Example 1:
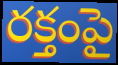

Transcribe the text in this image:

రక్తంపై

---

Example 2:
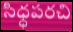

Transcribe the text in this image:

సిధ్ధపరచి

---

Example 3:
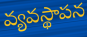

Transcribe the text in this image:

వ్యవస్థాపన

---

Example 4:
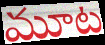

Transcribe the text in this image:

మూట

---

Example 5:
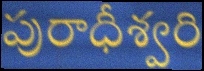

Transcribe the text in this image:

పురాధీశ్వరి